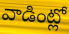
వాడింట్లో